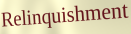
Relinquishment